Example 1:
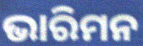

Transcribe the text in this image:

ଭାରିମନ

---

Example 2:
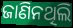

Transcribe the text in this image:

ଜାଣିନଥିଲି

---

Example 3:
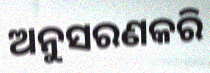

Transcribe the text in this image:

ଅନୁସରଣକରି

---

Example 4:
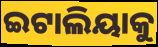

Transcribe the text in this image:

ଇଟାଲିୟାକୁ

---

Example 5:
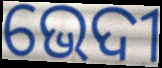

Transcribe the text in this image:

ଭେଦୀ